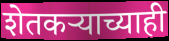
शेतकऱ्याच्याही